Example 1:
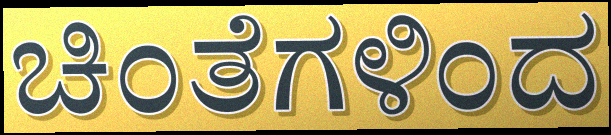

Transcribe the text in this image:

ಚಿಂತೆಗಳಿಂದ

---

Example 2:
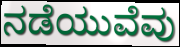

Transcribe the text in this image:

ನಡೆಯುವೆವು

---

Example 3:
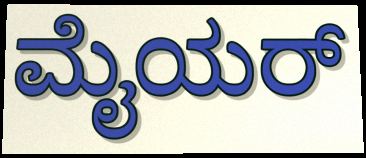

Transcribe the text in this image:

ಮೈಯರ್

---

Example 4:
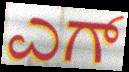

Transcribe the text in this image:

ಎಗ್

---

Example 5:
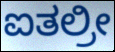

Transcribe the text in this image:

ಐತಲ್ರೀ